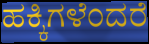
ಹಕ್ಕಿಗಳೆಂದರೆ